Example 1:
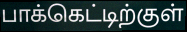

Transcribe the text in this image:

பாக்கெட்டிற்குள்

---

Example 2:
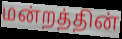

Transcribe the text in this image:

மன்றத்தின்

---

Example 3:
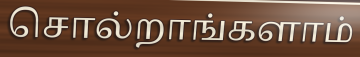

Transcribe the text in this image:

சொல்றாங்களாம்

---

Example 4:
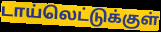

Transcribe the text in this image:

டாய்லெட்டுக்குள்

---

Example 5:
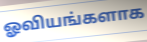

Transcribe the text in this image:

ஓவியங்களாக